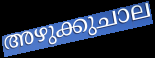
അഴുക്കുചാല